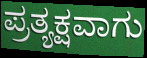
ಪ್ರತ್ಯಕ್ಷವಾಗು